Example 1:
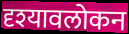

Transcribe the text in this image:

दृश्‍यावलोकन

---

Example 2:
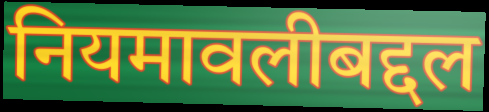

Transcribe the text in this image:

नियमावलीबद्दल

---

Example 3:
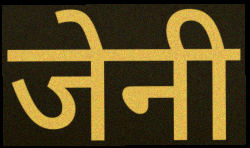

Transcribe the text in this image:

जेनी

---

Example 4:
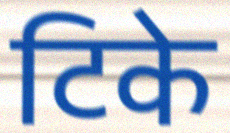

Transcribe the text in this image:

टिके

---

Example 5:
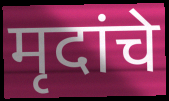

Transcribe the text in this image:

मृदांचे